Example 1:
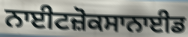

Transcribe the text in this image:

ਨਾਈਟਜ਼ੋਕਸਾਨਾਈਡ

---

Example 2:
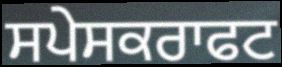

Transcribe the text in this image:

ਸਪੇਸਕਰਾਫਟ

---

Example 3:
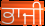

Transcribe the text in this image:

ਭਾਜੀ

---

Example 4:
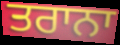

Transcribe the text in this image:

ਤਰਾਨਾ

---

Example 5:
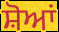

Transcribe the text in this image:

ਸ਼ੋਆਂ